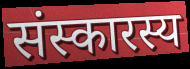
संस्कारस्य